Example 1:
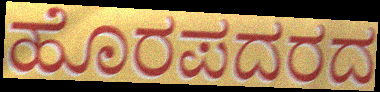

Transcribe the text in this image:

ಹೊರಪದರದ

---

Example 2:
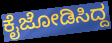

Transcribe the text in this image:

ಕೈಜೋಡಿಸಿದ್ದ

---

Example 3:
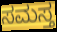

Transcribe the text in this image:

ಸಮಸ್ತ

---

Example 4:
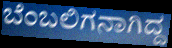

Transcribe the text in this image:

ಬೆಂಬಲಿಗನಾಗಿದ್ದ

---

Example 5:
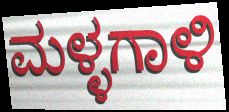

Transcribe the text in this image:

ಮಳ್ಳಗಾಳಿ